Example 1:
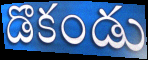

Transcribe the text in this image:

డొకండు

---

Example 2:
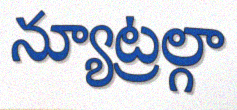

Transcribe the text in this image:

న్యూట్రల్గా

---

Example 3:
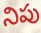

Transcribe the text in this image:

నిపు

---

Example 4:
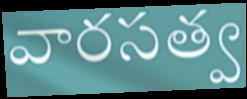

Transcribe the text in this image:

వారసత్వ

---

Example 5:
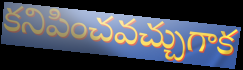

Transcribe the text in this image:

కనిపించవచ్చుగాక